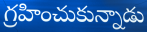
గ్రహించుకున్నాడు